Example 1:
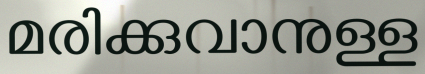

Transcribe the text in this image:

മരിക്കുവാനുള്ള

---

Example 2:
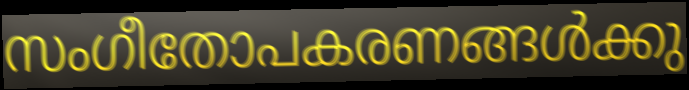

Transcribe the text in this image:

സംഗീതോപകരണങ്ങൾക്കു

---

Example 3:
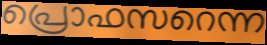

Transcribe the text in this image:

പ്രൊഫസറെന്ന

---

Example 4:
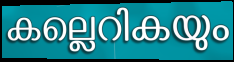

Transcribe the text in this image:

കല്ലെറികയും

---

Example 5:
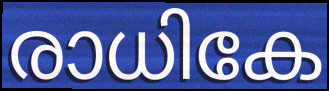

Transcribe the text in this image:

രാധികേ